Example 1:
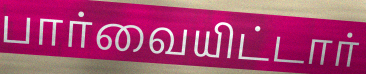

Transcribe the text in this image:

பார்வையிட்டார்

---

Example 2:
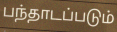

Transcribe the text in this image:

பந்தாடப்படும்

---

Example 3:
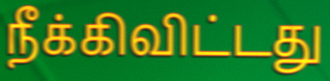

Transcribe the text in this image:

நீக்கிவிட்டது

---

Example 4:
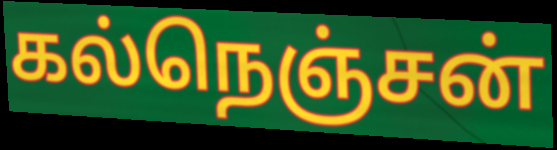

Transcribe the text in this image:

கல்நெஞ்சன்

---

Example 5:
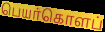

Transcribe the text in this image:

பெயர்கொளப்